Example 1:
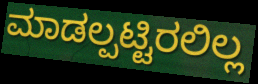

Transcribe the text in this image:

ಮಾಡಲ್ಪಟ್ಟಿರಲಿಲ್ಲ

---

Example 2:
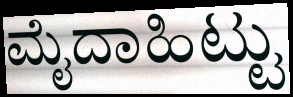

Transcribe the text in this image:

ಮೈದಾಹಿಟ್ಟು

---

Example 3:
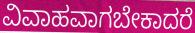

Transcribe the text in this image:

ವಿವಾಹವಾಗಬೇಕಾದರೆ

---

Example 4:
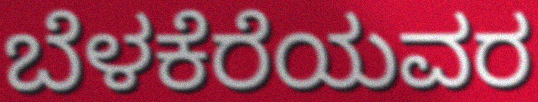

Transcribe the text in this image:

ಬೆಳಕೆರೆಯವರ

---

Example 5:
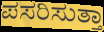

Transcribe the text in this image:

ಪಸರಿಸುತ್ತಾ